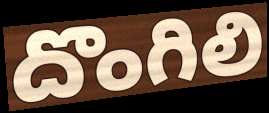
దొంగిలి